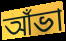
আঁভা